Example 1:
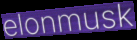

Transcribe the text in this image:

elonmusk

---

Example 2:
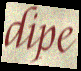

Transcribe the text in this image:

dipe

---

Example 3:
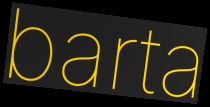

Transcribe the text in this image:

barta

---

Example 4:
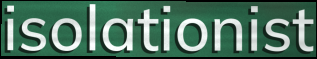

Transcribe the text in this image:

isolationist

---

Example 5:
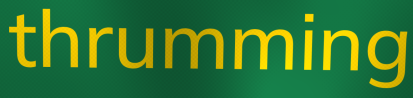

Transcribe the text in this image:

thrumming